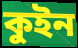
কুইন